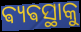
ଵ୍ୟଵସ୍ଥାକୁ